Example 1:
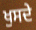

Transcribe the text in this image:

ਖੁਸਦੇ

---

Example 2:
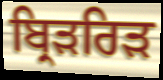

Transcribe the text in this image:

ਬ੍ਰਿੜਰਿੜ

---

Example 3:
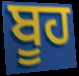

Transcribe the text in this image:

ਬੂਹ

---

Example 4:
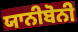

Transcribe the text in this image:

ਯਾਨੀਬੋਨੀ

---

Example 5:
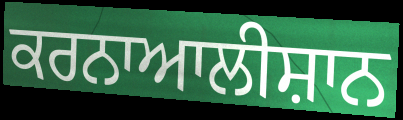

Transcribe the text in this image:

ਕਰਨਾਆਲੀਸ਼ਾਨ